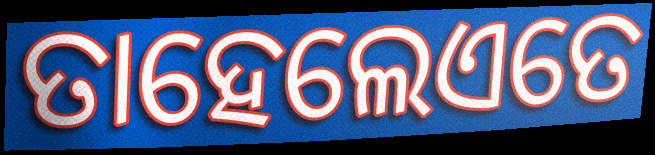
ତାହେଲେଏତେ